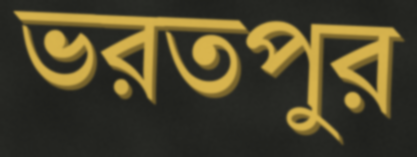
ভরতপুর